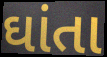
ઘાંતા